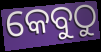
କେବୁଠୁ